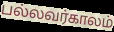
பல்லவர்காலம்